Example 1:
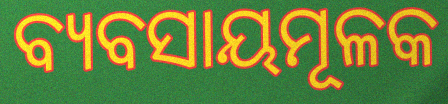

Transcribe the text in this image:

ବ୍ୟବସାୟମୂଳକ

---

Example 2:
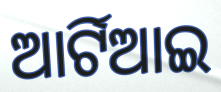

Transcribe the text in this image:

ଆର୍ଟିଆଇ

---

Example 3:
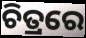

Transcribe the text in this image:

ଚିତ୍ରରେ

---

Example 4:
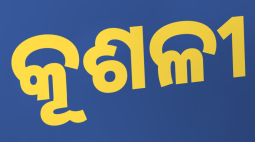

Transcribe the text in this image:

କୂଶଳୀ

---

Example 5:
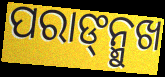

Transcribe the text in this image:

ପରାଙ୍‌ନ୍ମୁଖ